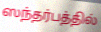
ஸந்தர்பத்தில்